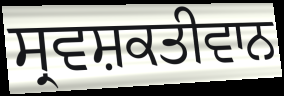
ਸ੍ਰਵਸ਼ਕਤੀਵਾਨ